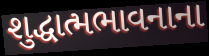
શુદ્ધાત્મભાવનાના